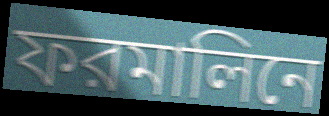
ফরমালিনে